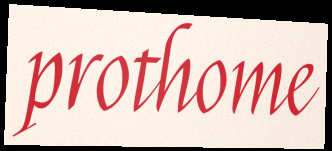
prothome